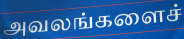
அவலங்களைச்